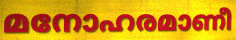
മനോഹരമാണീ